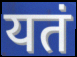
यतं